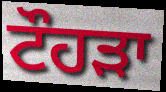
ਟੌਹਡ਼ਾ